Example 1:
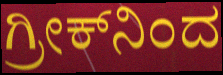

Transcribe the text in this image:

ಗ್ರೀಕ್‌ನಿಂದ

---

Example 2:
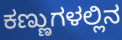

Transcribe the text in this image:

ಕಣ್ಣುಗಳಲ್ಲಿನ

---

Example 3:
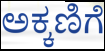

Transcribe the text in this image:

ಅಕ್ಕಣಿಗೆ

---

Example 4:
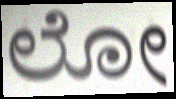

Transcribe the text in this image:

ಲೋ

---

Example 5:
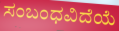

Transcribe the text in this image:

ಸಂಬಂಧವಿದೆಯೆ